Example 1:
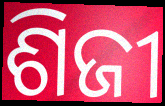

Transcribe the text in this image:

ଶିଜୀ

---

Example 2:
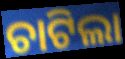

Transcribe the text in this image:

ଚାଟିଲା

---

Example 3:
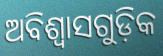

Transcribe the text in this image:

ଅବିଶ୍ଵାସଗୁଡ଼ିକ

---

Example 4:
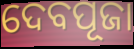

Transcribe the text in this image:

ଦେବପୂଜା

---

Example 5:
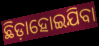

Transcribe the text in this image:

ଛିଡ଼ାହୋଇଯିବା